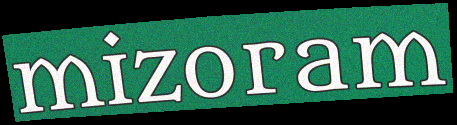
mizoram